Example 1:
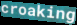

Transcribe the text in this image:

croaking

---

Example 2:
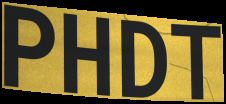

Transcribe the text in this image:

PHDT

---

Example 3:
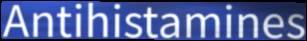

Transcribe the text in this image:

Antihistamines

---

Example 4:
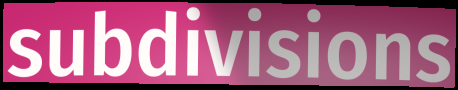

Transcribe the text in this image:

subdivisions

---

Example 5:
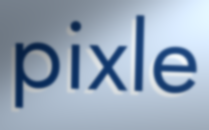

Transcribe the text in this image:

pixle